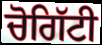
ਚੋਗਿੱਟੀ